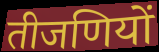
तीजणियों